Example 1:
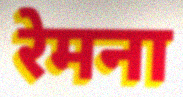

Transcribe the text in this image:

रेमना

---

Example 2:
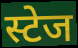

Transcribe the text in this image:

स्टेज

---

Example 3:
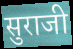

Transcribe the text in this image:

सुराजी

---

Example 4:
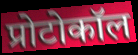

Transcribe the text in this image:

प्रोटोकॉल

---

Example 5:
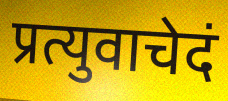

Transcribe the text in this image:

प्रत्युवाचेदं